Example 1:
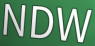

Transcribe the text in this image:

NDW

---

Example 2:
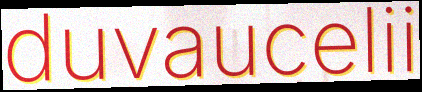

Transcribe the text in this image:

duvaucelii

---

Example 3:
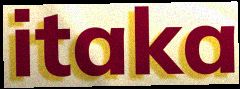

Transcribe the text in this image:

itaka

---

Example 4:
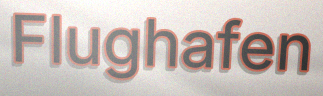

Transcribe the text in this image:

Flughafen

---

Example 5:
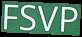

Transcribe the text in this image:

FSVP